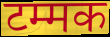
टम्मक